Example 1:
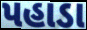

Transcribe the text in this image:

પહાડા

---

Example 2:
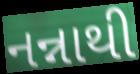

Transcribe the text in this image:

નન્નાથી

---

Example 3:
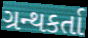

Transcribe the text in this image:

ગ્રન્થકર્તા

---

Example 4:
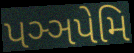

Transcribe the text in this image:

પઞ્ઞપેમિ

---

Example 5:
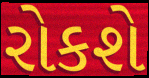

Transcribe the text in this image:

રોકશે